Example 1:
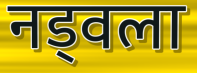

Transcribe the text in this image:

नड्वला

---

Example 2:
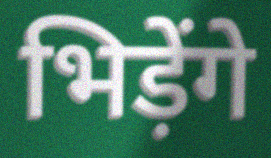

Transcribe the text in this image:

भिड़ेंगे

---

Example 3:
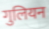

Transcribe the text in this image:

गुलियन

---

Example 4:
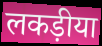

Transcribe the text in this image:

लकड़ीया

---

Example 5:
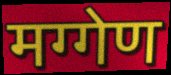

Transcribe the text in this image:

मग्गेण